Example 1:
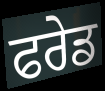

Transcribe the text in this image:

ਫਰੇਡ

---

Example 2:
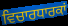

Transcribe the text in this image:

ਵਿਚਾਰਧਾਰਕਾਂ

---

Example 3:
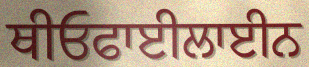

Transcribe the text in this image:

ਥੀਓਫਾਈਲਾਈਨ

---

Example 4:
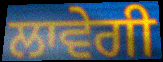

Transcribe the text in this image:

ਲਾਵੇਗੀ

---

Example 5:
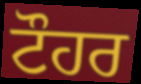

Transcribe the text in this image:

ਟੌਹਰ